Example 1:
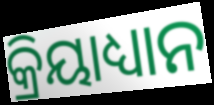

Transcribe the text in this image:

କ୍ରିୟାଧ୍ୟାନ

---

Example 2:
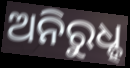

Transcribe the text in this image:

ଅନିରୁଧ୍ହ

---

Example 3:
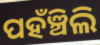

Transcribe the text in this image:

ପହଁଞ୍ଚିଲି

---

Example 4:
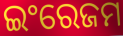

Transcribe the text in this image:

ଇଂରେଜମ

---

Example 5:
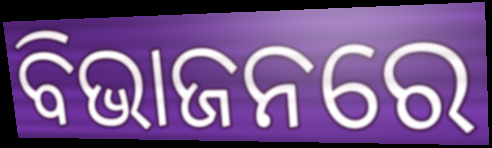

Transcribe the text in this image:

ବିଭାଜନରେ